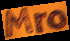
Mro